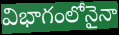
విభాగంలోనైనా